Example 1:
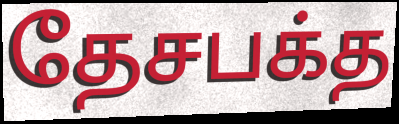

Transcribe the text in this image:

தேசபக்த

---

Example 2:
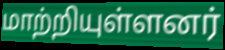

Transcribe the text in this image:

மாற்றியுள்ளனர்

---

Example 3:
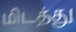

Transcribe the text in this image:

மிடத்து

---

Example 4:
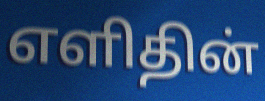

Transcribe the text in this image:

எளிதின்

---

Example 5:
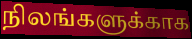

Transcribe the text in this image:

நிலங்களுக்காக